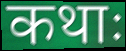
कथाः